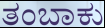
ತಂಬಾಕು